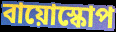
বায়োস্কোপ